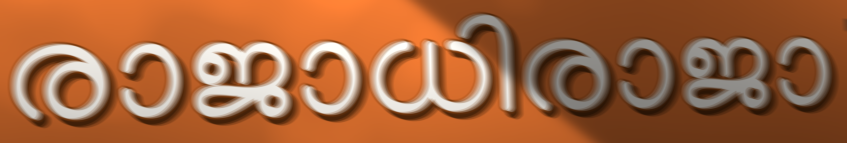
രാജാധിരാജാ